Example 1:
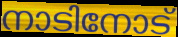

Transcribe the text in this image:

നാടിനോട്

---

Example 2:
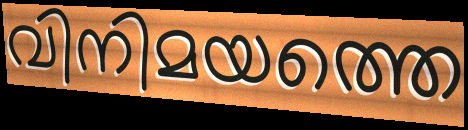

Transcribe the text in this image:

വിനിമയത്തെ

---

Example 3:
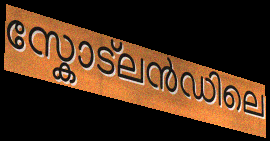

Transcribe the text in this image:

സ്കോട്ലൻഡിലെ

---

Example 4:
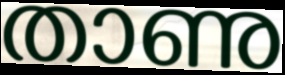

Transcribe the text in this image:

താണു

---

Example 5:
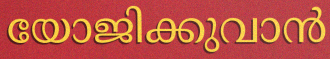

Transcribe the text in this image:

യോജിക്കുവാൻ